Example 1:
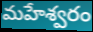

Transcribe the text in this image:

మహేశ్వరం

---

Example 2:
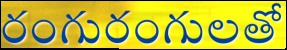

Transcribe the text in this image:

రంగురంగులతో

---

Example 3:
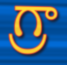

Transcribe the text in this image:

గ్రా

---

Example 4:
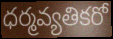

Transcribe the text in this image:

ధర్మవ్యతికరో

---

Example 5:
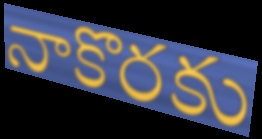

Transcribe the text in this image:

నాకొరకు